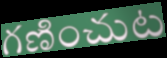
గణించుట